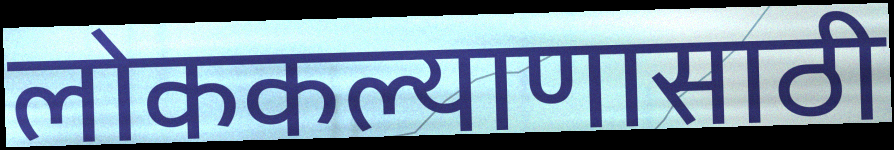
लोककल्याणासाठी